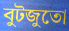
বুটজুতো